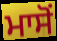
ਮਾਸੋਂ